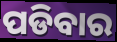
ପଡିବାର